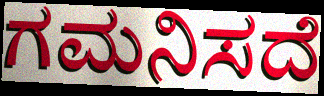
ಗಮನಿಸದೆ